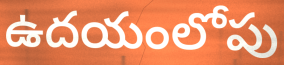
ఉదయంలోపు